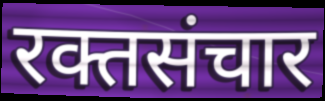
रक्तसंचार